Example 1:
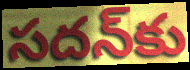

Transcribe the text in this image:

సదన్‌కు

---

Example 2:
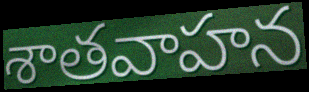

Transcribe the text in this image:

శాతవాహన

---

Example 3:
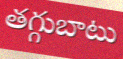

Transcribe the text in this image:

తగ్గుబాటు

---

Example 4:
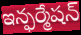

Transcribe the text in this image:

ఇన్ఫర్మేషన్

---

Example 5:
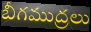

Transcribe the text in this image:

బీగముద్రలు